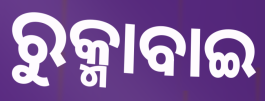
ରୁକ୍ମାବାଇ